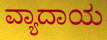
ವ್ಯಾದಾಯ